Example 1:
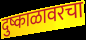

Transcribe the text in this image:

दुष्काळावरचा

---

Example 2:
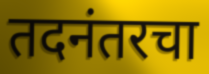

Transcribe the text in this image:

तदनंतरचा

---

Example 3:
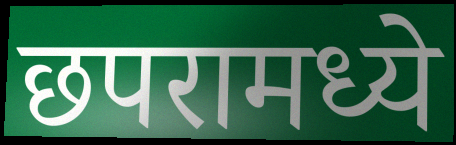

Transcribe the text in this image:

छपरामध्ये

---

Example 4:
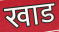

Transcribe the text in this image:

खाड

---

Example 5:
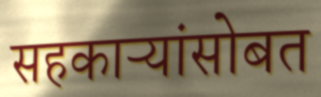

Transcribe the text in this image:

सहकाऱ्यांसोबत